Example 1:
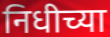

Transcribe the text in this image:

निधीच्या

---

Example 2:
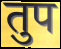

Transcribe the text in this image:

तुप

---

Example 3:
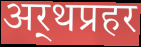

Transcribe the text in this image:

अर्थप्रहर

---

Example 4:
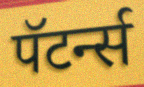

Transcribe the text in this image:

पॅटर्न्स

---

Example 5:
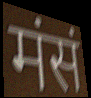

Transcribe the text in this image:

मंसं